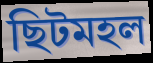
ছিটমহল